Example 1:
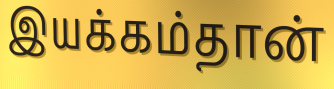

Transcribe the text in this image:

இயக்கம்தான்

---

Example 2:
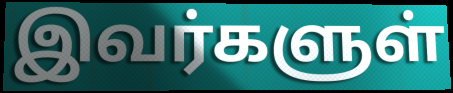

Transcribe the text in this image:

இவர்களுள்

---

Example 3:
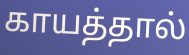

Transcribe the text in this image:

காயத்தால்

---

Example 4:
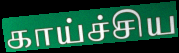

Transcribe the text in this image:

காய்ச்சிய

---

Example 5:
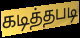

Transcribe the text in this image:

கடித்தபடி